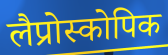
लैप्रोस्कोपिक